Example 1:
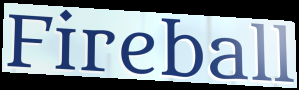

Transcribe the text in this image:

Fireball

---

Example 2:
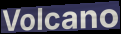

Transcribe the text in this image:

Volcano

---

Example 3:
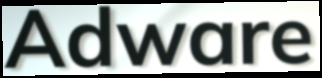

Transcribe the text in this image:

Adware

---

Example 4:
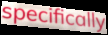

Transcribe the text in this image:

specifically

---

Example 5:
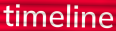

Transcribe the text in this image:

timeline